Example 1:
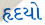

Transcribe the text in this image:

હૃદયો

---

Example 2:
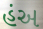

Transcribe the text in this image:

હંઅ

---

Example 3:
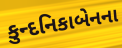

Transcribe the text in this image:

કુન્દનિકાબેનના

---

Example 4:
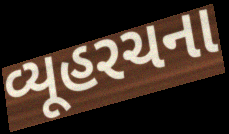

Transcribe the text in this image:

વ્યૂહરચના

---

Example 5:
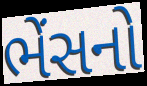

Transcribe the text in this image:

ભેંસનો